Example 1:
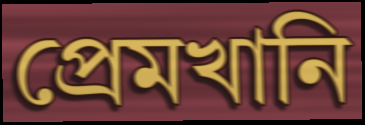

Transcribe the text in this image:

প্রেমখানি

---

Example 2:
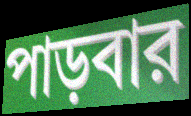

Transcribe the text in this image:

পাড়বার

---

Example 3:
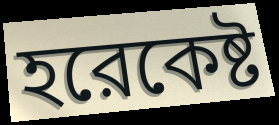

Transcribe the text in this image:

হরেকেষ্ট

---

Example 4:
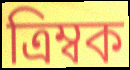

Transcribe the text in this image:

ত্রিম্বক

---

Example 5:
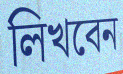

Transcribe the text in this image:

লিখবেন